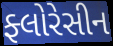
ફ્લોરેસીન